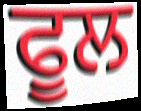
ਫੂਲ